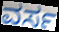
ವರ್ಸ